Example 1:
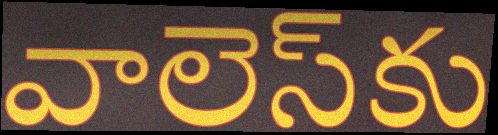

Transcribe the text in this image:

వాలెస్‌కు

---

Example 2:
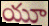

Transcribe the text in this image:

యూ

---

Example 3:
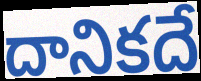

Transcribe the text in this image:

దానికదే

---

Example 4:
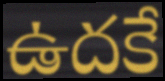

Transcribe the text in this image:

ఉదకే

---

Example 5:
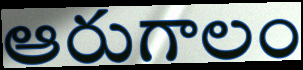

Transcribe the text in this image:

ఆరుగాలం